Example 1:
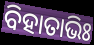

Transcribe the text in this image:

ବିହାତାଭିଃ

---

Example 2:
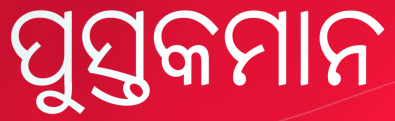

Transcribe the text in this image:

ପୁସ୍ତକମାନ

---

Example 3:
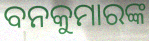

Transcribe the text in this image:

ବନକୁମାରଙ୍କ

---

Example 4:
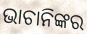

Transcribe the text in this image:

ଭାଚାନିଙ୍କର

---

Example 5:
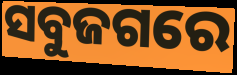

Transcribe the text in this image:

ସବୁଜଗରେ